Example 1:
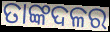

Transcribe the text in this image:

ତାଙ୍କଦଳର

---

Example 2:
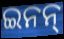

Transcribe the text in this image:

ଇନନ୍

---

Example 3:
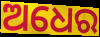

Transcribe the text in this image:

ଅଧେର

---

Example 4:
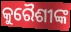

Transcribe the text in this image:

କୁରୈଶୀଙ୍କ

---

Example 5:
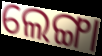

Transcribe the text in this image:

ଲେଙ୍ଗା